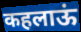
कहलाऊं